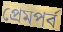
প্রেমপর্ব